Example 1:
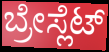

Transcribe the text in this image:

ಬ್ರೇಸ್ಲೆಟ್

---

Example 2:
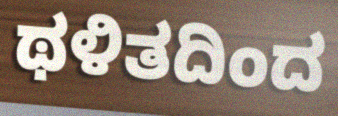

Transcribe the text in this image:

ಥಳಿತದಿಂದ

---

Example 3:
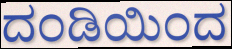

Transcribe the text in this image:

ದಂಡಿಯಿಂದ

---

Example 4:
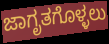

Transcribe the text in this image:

ಜಾಗೃತಗೊಳ್ಳಲು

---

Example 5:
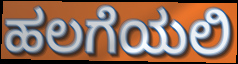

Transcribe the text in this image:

ಹಲಗೆಯಲಿ